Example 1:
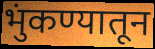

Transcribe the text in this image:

भुंकण्यातून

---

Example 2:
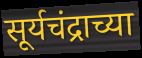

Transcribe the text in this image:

सूर्यचंद्राच्या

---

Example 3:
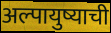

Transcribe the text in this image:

अल्पायुष्याची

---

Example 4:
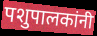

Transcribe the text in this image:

पशुपालकांनी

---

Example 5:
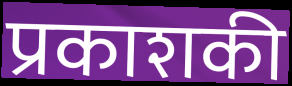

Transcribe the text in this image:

प्रकाशकी